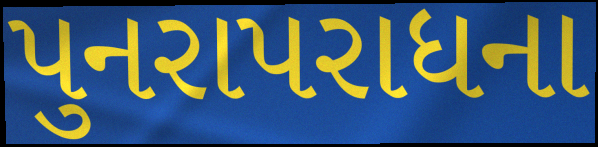
પુનરાપરાધના